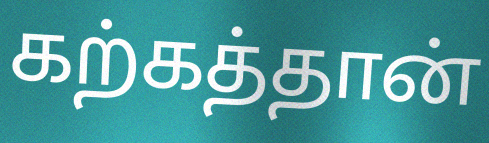
கற்கத்தான்